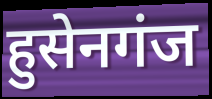
हुसेनगंज